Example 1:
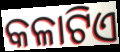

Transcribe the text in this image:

କଳାଟିଏ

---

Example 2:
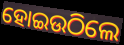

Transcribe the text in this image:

ହୋଇଉଠିଲେ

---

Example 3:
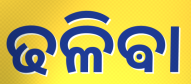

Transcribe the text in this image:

ଢଳିଵା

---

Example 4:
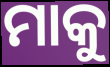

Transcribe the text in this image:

ମାକୁ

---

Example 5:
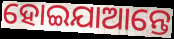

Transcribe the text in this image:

ହୋଇଯାଆନ୍ତେ